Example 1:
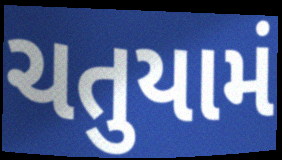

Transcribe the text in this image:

ચતુયામં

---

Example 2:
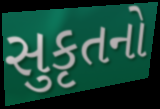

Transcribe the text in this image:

સુકૃતનો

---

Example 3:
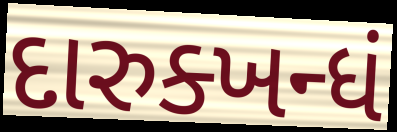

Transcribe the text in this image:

દારુક્ખન્ધં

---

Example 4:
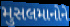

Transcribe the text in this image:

મુસલમાનોને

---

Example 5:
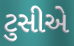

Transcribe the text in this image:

ટુસીએ